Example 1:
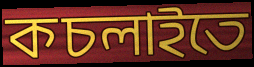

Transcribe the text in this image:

কচলাইতে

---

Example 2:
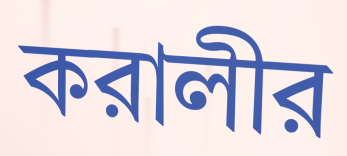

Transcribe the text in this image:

করালীর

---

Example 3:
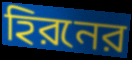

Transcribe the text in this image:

হিরনের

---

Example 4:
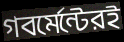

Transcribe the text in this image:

গবর্মেন্টেরই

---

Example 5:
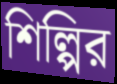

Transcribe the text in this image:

শিল্পির